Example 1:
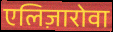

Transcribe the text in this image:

एलिज़ारोवा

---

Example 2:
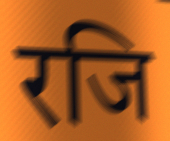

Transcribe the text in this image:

रजि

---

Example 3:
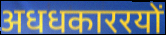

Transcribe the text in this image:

अधधकाररयों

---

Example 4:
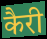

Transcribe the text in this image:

कैरी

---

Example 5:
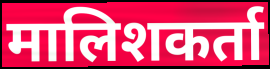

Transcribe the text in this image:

मालिशकर्ता